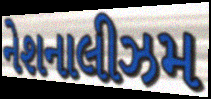
નેશનાલીઝમ